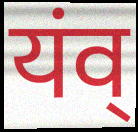
यंव्